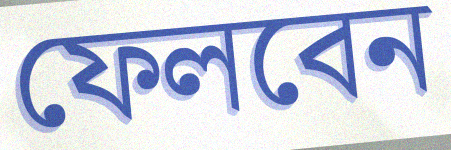
ফেলবেন